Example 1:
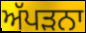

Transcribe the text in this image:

ਅੱਪੜਨਾ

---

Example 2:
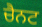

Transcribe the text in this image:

ਚੈਨਟ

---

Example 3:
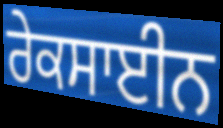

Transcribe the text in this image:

ਰੇਕਸਾਈਨ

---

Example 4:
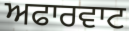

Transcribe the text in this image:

ਅਫਾਰਵਾਟ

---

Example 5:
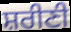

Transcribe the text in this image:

ਸ਼ਰੀਣੀ